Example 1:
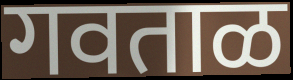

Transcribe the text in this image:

गवताळ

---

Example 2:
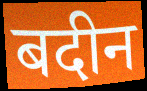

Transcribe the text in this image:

बदीन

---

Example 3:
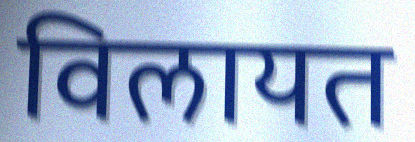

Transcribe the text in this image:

विलायत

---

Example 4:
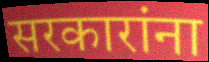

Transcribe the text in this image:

सरकारांना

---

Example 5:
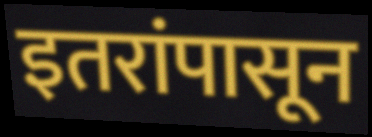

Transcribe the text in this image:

इतरांपासून